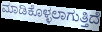
ಮಾಡಿಕೊಳ್ಳಲಾಗುತ್ತಿದೆ